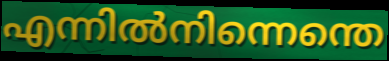
എന്നിൽനിന്നെന്തെ